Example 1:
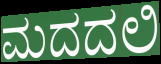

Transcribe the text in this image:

ಮದದಲಿ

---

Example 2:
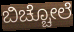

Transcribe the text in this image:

ಬಿಚ್ಚೋಲೆ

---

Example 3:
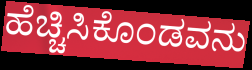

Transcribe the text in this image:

ಹೆಚ್ಚಿಸಿಕೊಂಡವನು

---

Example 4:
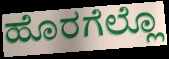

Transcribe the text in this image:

ಹೊರಗೆಲ್ಲೊ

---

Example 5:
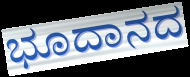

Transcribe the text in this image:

ಭೂದಾನದ